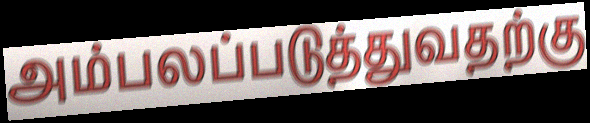
அம்பலப்படுத்துவதற்கு